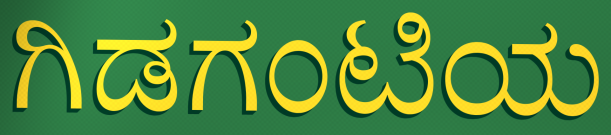
ಗಿಡಗಂಟಿಯ